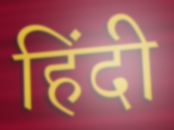
हिंदी